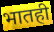
भातही